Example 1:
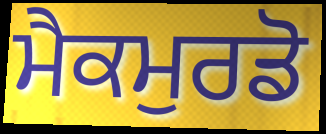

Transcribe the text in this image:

ਮੈਕਮੁਰਡੋ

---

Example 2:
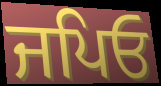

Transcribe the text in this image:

ਜਪਿਓ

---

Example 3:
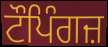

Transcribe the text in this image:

ਟੌਪਿੰਗਜ਼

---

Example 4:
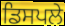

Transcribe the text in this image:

ਡਿਸਪਲੇ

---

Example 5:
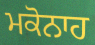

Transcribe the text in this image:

ਮਕੋਨਾਹ